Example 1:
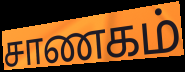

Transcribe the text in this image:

சாணகம்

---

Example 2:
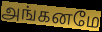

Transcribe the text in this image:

அங்கனமே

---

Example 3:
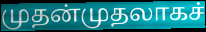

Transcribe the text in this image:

முதன்முதலாகச்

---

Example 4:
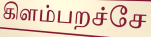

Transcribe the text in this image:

கிளம்பறச்சே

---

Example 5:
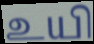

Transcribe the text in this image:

உயி